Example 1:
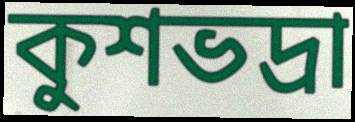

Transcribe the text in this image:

কুশভদ্রা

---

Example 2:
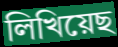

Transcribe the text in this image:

লিখিয়েছ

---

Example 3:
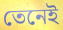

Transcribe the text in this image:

তেনেই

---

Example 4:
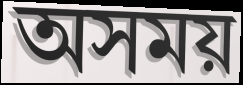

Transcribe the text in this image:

অসময়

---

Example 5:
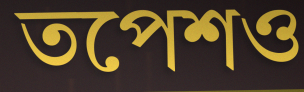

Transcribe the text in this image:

তপেশও